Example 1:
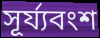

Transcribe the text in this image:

সূর্য্যবংশ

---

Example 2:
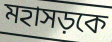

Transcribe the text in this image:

মহাসড়কে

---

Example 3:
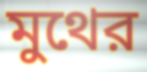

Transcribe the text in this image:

মুথের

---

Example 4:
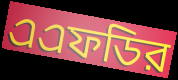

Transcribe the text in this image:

এএফডির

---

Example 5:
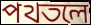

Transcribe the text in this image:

পথতলে